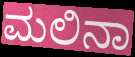
ಮಲಿನಾ